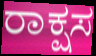
ರಾಕ್ಷಸ